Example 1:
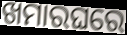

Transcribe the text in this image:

ଖମାରଘରେ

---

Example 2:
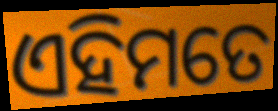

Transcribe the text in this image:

ଏହିମତେ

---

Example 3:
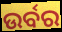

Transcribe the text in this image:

ଉର୍ବର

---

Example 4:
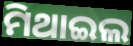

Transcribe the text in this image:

ମିଥାଇଲ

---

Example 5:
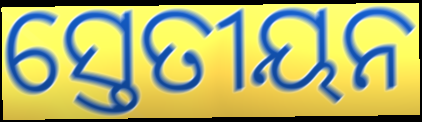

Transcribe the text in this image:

ସ୍ତେତୀୟନ